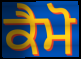
ਕੈਮੋ